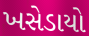
ખસેડાયો